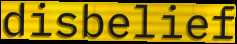
disbelief